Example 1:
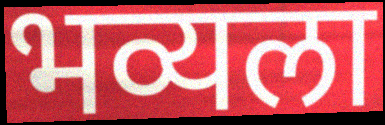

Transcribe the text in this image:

भव्यला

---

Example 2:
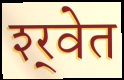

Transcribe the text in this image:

श्र्वेत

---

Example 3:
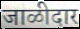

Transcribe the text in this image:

जाळीदार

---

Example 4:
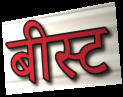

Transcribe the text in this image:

बीस्ट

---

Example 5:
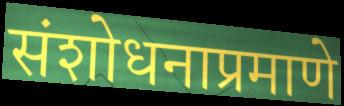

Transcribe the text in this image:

संशोधनाप्रमाणे